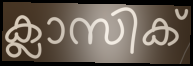
ക്ലാസിക്